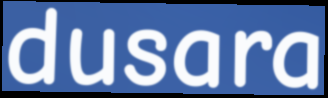
dusara